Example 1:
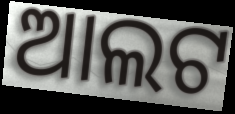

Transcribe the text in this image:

ଆଲଟ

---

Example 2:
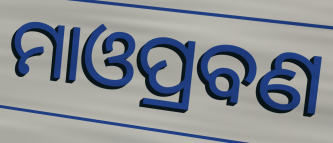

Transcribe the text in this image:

ମାଓପ୍ରବଣ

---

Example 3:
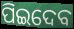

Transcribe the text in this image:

ପିଇଦେବ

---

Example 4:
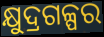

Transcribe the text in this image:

କ୍ଷୁଦ୍ରଗଳ୍ପର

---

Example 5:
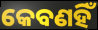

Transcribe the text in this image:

କେବଣହିଁ